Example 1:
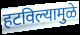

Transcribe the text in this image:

हटविल्यामुळे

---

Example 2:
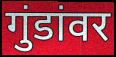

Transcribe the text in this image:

गुंडांवर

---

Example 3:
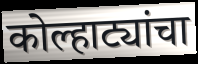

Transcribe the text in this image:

कोल्हाट्यांचा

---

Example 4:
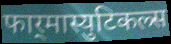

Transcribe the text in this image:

फार्मास्युटिकल्स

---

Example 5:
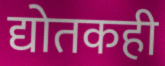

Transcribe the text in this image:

द्योतकही